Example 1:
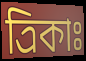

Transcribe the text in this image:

ত্রিকাঃ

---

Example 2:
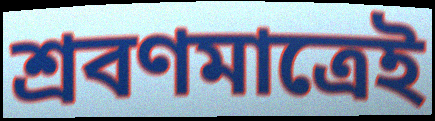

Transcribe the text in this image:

শ্রবণমাত্রেই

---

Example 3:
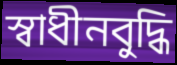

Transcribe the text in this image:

স্বাধীনবুদ্ধি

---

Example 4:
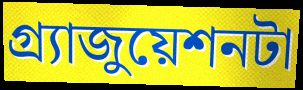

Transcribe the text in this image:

গ্র্যাজুয়েশনটা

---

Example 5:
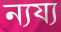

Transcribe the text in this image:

ন্যয্য